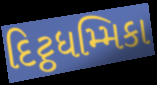
દિટ્ઠધમ્મિકા